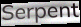
Serpent